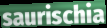
saurischia